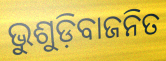
ଭୁଶୁଡ଼ିବାଜନିତ